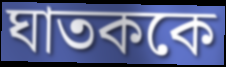
ঘাতককে